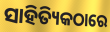
ସାହିତ୍ୟିକଠାରେ